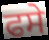
ਫਸੇ